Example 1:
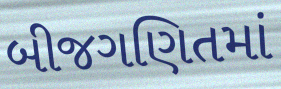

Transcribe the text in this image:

બીજગણિતમાં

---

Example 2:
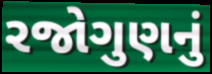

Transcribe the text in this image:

રજોગુણનું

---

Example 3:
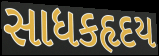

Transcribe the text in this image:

સાધકહૃદય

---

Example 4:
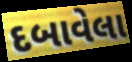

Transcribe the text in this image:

દબાવેલા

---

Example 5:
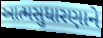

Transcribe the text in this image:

આત્મસુધારણાને